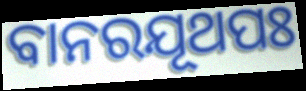
ବାନରଯୂଥପଃ